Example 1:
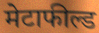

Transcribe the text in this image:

मेटाफील्ड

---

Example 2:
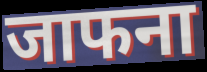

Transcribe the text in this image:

जाफना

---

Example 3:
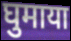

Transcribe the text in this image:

घुमाया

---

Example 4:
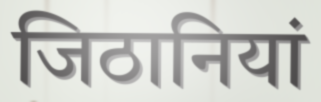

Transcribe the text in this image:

जिठानियां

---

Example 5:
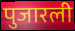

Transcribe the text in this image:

पुजारली